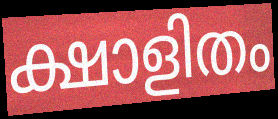
ക്ഷാളിതം